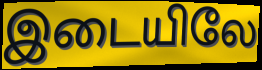
இடையிலே